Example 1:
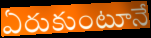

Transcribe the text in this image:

ఏరుకుంటూనే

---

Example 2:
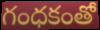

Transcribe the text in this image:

గంధకంతో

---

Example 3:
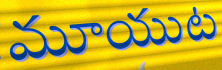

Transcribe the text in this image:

మూయుట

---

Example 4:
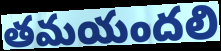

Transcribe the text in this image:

తమయందలి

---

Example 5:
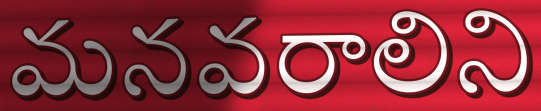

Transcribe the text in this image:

మనవరాలిని